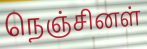
நெஞ்சினள்